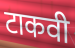
टाकवी